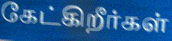
கேட்கிறீர்கள்